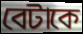
বেটাকে